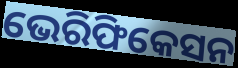
ଭେରିଫିକେସନ